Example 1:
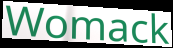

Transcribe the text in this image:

Womack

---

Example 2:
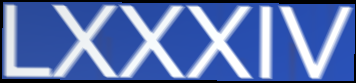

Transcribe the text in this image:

LXXXIV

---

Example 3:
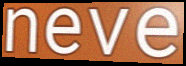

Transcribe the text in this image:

neve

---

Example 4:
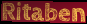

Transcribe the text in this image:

Ritaben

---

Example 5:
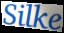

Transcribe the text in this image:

Silke